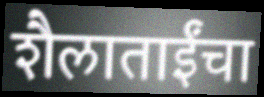
शैलाताईंचा